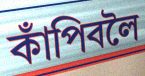
কাঁপিবলৈ